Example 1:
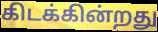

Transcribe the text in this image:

கிடக்கின்றது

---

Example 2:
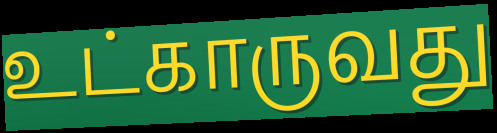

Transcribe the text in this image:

உட்காருவது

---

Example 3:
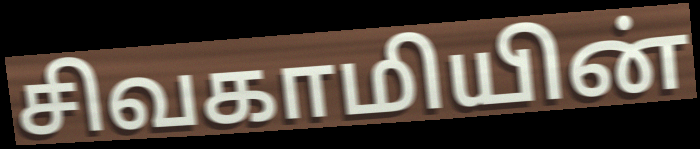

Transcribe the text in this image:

சிவகாமியின்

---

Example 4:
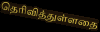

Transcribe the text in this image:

தெரிவித்துள்ளதை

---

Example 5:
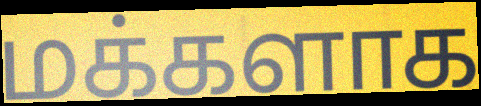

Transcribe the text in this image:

மக்களாக